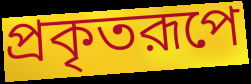
প্রকৃতরূপে